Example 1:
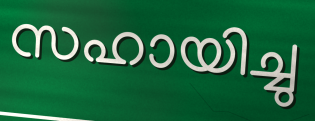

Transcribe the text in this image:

സഹായിച്ചു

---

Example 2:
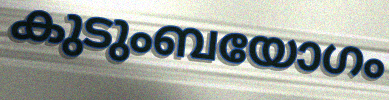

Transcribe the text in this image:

കുടുംബയോഗം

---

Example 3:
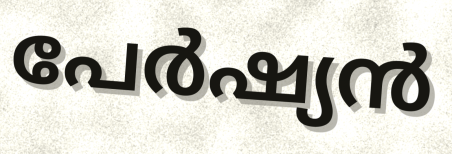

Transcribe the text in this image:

പേർഷ്യൻ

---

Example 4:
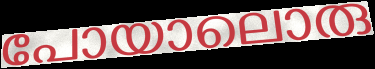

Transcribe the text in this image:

പോയാലൊരു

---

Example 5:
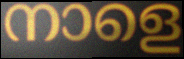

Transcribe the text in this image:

നാളെ